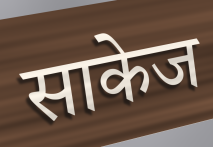
साकेज